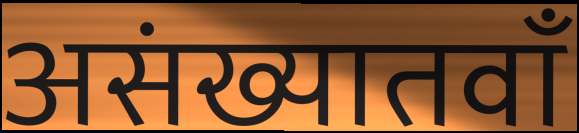
असंख्यातवाँ